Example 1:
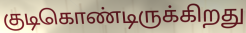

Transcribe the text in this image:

குடிகொண்டிருக்கிறது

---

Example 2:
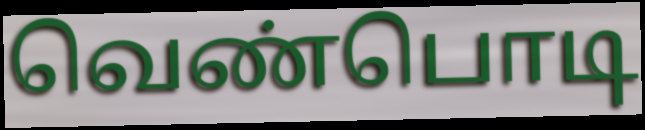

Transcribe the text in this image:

வெண்பொடி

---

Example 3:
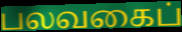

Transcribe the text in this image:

பலவகைப்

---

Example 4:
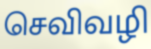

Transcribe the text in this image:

செவிவழி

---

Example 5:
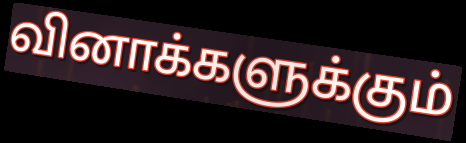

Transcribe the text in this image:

வினாக்களுக்கும்